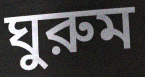
ঘুরুম